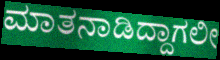
ಮಾತನಾಡಿದ್ದಾಗಲೀ